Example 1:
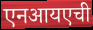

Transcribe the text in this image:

एनआयएची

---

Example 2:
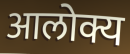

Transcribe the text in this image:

आलोक्य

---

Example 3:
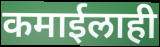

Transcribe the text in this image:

कमाईलाही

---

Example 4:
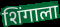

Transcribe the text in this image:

शिंगाला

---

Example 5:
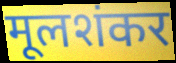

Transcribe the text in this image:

मूलशंकर